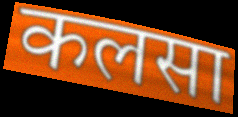
कलसा